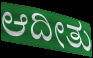
ಆದೀತು